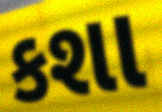
કશા